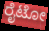
ರೈಟೋ